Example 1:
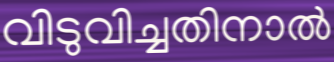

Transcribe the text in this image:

വിടുവിച്ചതിനാൽ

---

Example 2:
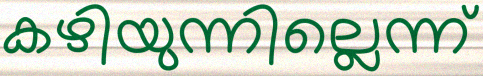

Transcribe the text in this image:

കഴിയുന്നില്ലെന്ന്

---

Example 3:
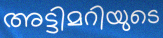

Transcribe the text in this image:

അട്ടിമറിയുടെ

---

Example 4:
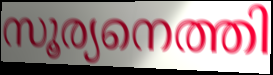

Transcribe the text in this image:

സൂര്യനെത്തി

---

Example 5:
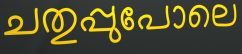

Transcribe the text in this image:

ചതുപ്പുപോലെ